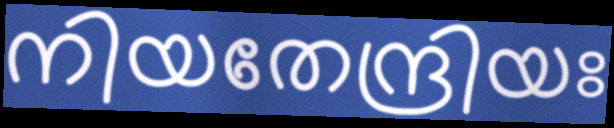
നിയതേന്ദ്രിയഃ